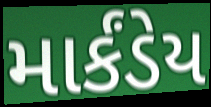
માર્કંડેય